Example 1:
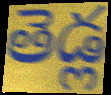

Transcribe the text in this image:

తెడ్ల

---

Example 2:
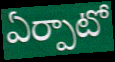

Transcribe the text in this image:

ఏర్పాటో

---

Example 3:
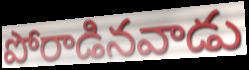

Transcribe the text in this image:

పోరాడినవాడు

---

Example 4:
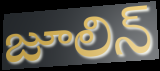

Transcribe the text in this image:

జూలిన్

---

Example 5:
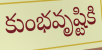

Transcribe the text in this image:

కుంభవృష్టికి